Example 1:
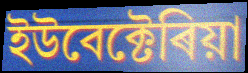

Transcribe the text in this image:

ইউবেক্টেৰিয়া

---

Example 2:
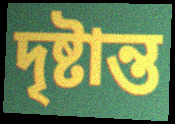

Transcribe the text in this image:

দৃষ্টান্ত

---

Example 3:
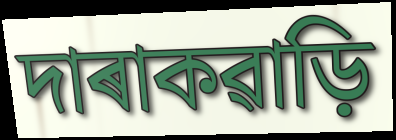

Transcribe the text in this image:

দাৰাকৱাড়ি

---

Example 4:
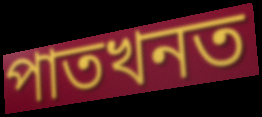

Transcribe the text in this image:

পাতখনত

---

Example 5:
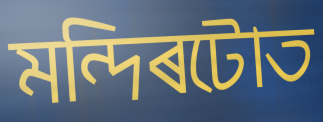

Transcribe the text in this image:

মন্দিৰটোত